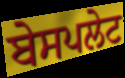
ਬੇਸਪਲੇਟ